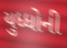
યુધ્ધોની